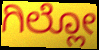
ಗಿಲ್ಲೋ